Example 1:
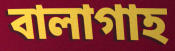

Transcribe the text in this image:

বালাগাহ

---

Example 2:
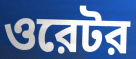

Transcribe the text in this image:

ওরেটর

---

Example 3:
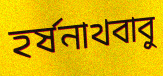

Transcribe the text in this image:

হর্ষনাথবাবু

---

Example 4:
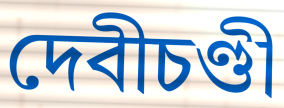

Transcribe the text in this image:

দেবীচণ্ডী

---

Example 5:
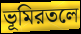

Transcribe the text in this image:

ভূমিরতলে